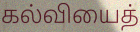
கல்வியைத்